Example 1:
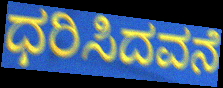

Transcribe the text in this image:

ಧರಿಸಿದವನೆ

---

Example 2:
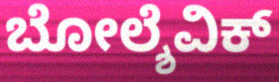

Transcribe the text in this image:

ಬೋಲ್ಶೆವಿಕ್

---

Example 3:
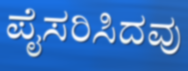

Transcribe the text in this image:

ಪೈಸರಿಸಿದವು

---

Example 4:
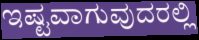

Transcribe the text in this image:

ಇಷ್ಟವಾಗುವುದರಲ್ಲಿ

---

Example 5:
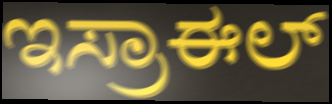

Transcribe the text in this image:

ಇಸ್ರಾಈಲ್